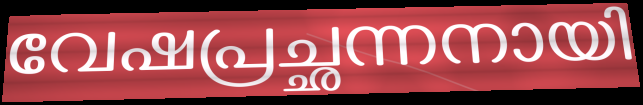
വേഷപ്രച്ഛന്നനായി